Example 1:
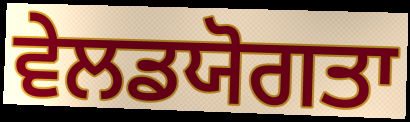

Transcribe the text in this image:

ਵੇਲਡਯੋਗਤਾ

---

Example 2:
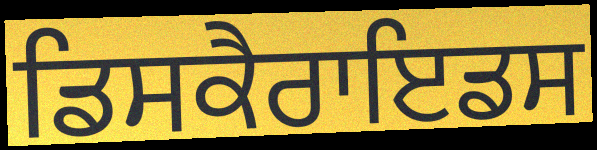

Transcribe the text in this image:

ਡਿਸਕੈਰਾਇਡਸ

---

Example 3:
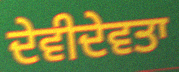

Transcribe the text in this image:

ਦੇਵੀਦੇਵਤਾ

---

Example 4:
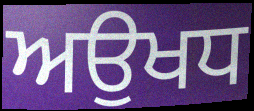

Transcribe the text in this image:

ਅਉਖਧ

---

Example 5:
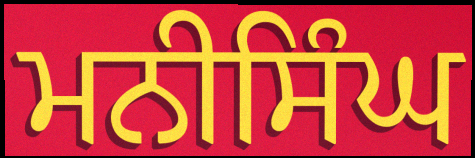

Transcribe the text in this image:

ਮਨੀਸਿੰਘ